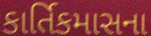
કાર્તિકમાસના